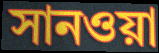
সানওয়া